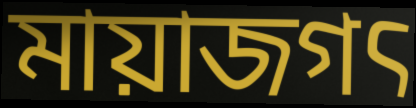
মায়াজগৎ